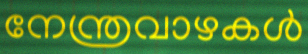
നേന്ത്രവാഴകൾ